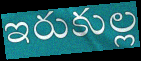
ఇరుకుల్ల